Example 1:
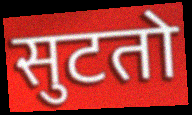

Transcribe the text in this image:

सुटतो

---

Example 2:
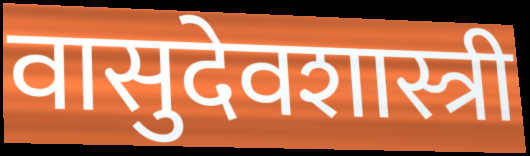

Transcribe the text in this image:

वासुदेवशास्त्री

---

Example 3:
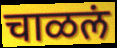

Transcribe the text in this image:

चाळलं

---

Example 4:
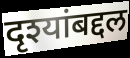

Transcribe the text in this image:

दृश्यांबद्दल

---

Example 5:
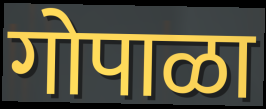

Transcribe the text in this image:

गोपाळा